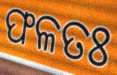
ଫଳତଃ